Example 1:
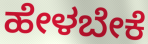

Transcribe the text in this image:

ಹೇಳಬೇಕೆ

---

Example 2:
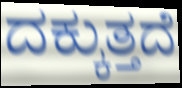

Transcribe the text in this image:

ದಕ್ಕುತ್ತದೆ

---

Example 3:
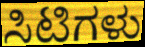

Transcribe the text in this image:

ಸಿಟಿಗಳು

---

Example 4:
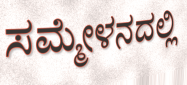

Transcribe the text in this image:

ಸಮ್ಮೇಳನದಲ್ಲಿ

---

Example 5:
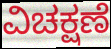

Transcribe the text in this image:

ವಿಚಕ್ಷಣೆ